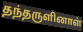
தந்தருளினாள்